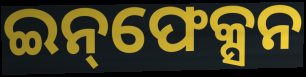
ଇନ୍‌ଫେକ୍ସନ